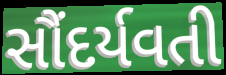
સૌંદર્યવતી